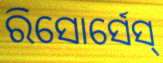
ରିସୋର୍ସେସ୍